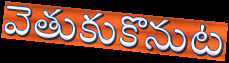
వెతుకుకొనుట